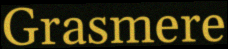
Grasmere